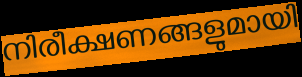
നിരീക്ഷണങ്ങളുമായി